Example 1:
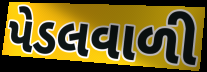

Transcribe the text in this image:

પેડલવાળી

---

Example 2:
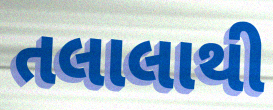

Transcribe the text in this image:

તલાલાથી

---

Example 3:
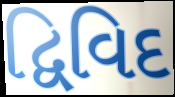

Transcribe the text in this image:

દ્વિવિદ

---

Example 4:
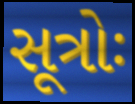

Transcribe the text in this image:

સૂત્રોઃ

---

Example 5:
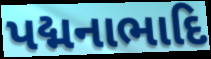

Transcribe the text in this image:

પદ્મનાભાદિ